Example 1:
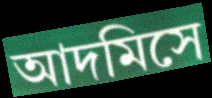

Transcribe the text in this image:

আদমিসে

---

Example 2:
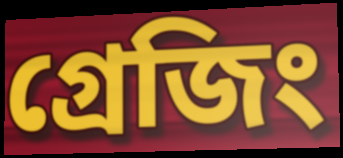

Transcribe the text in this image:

গ্রেজিং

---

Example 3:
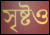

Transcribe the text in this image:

সৃষ্টও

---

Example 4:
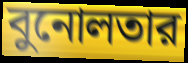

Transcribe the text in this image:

বুনোলতার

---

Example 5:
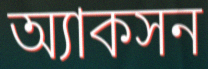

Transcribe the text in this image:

অ্যাকসন